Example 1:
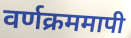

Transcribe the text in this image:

वर्णक्रममापी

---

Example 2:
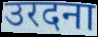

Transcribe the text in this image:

उरदना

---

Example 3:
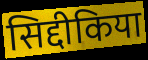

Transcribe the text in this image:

सिद्दीकिया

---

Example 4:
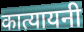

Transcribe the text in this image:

कात्यायनी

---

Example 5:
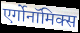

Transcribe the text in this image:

एर्गोनॉमिक्स